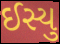
ઈસ્યુ